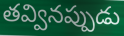
తవ్వినప్పుడు